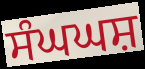
ਸੰਘਘਸ਼